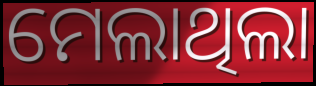
ମେଲାଥିଲା